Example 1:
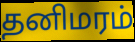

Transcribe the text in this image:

தனிமரம்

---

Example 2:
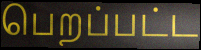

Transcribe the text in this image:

பெறப்பட்ட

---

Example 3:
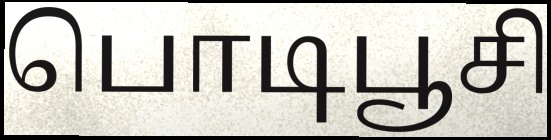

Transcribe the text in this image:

பொடிபூசி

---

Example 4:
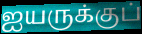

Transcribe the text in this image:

ஐயருக்குப்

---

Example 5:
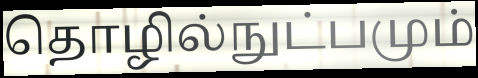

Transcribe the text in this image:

தொழில்நுட்பமும்